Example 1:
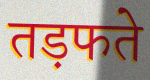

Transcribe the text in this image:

तड़फते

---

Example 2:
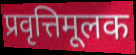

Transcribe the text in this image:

प्रवृत्तिमूलक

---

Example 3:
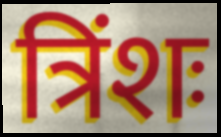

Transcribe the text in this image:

त्रिंशः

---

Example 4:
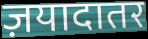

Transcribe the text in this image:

ज़यादातर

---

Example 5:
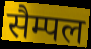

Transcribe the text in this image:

सैम्पल